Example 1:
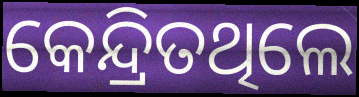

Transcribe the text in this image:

କେନ୍ଦ୍ରିତଥିଲେ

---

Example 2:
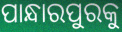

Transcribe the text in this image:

ପାନ୍ଧାରପୁରକୁ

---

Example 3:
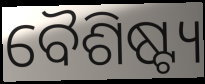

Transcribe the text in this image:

ବୈଶିଷ୍ଟ୍ୟ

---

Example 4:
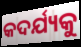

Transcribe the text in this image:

କଦର୍ଯ୍ୟକୁ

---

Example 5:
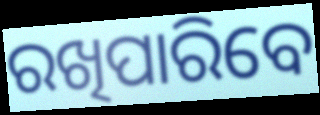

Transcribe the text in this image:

ରଖିପାରିବେ